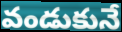
వండుకునే